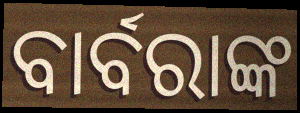
ବାର୍ବରାଙ୍କ